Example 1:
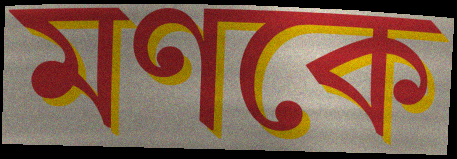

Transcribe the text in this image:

মণকে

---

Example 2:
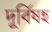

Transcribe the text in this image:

দূর্বিষহ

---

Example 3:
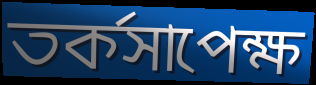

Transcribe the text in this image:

তর্কসাপেক্ষ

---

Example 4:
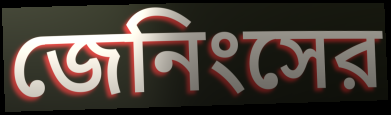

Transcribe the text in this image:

জেনিংসের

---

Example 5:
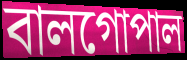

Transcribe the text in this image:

বালগোপাল